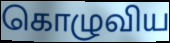
கொழுவிய